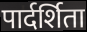
पार्दर्शिता